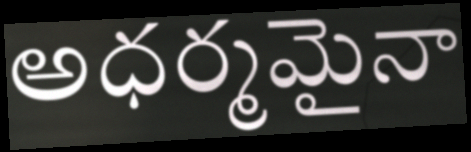
అధర్మమైనా